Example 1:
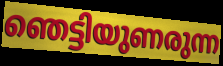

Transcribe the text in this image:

ഞെട്ടിയുണരുന്ന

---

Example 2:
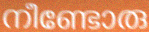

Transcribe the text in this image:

നീണ്ടോരു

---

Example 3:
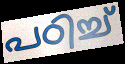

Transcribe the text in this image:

പഠിച്ച്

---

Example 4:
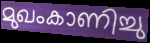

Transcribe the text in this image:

മുഖംകാണിച്ചു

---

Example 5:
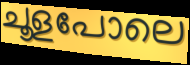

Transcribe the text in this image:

ചൂളപോലെ